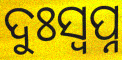
ଦୁଃସ୍ଵପ୍ନ